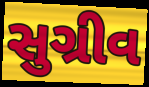
સુગ્રીવ